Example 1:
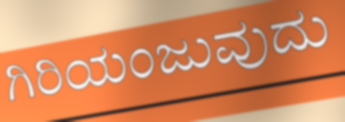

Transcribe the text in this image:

ಗಿರಿಯಂಜುವುದು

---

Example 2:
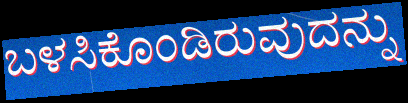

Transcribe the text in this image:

ಬಳಸಿಕೊಂಡಿರುವುದನ್ನು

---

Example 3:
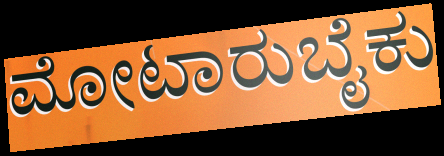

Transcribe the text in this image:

ಮೋಟಾರುಬೈಕು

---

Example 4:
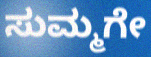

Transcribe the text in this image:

ಸುಮ್ಮಗೇ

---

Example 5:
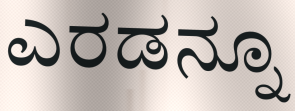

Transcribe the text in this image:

ಎರಡನ್ನೂ